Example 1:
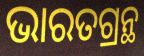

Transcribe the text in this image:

ଭାରତଗ୍ରନ୍ଥ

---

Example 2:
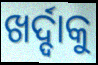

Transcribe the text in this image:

ଖର୍ଦ୍ଦାକୁ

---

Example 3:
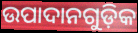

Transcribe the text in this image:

ଉପାଦାନଗୁଡ଼ିକ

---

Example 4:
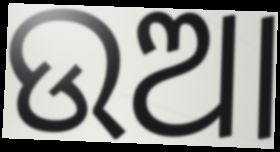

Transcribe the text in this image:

ଉଆ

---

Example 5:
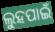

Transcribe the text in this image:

ଲୁହପାଇଁ